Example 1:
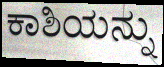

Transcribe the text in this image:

ಕಾಶಿಯನ್ನು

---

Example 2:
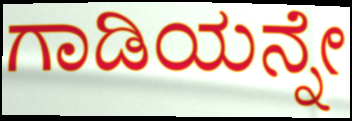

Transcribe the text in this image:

ಗಾಡಿಯನ್ನೇ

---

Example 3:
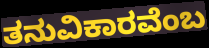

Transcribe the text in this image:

ತನುವಿಕಾರವೆಂಬ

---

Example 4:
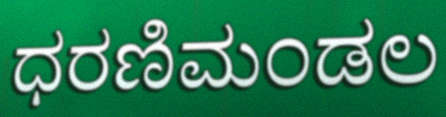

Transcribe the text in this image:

ಧರಣಿಮಂಡಲ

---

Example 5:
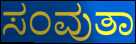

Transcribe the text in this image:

ಸಂವುತಾ